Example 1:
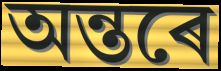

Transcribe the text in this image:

অন্তৰে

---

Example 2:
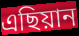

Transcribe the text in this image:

এছিয়ান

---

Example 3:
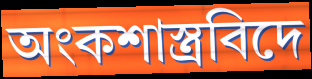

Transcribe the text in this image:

অংকশাস্ত্ৰবিদে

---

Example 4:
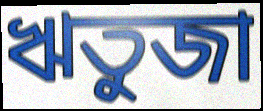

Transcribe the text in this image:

ঋতুজা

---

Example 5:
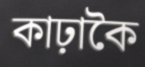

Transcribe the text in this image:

কাঢ়াকৈ